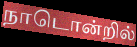
நாடொன்றில்